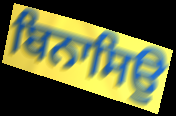
ਬਿਨਾਸਿਉ